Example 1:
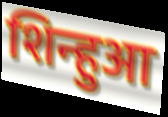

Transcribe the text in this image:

शिन्हुआ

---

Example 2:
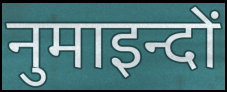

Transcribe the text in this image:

नुमाइन्दों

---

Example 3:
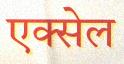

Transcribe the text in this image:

एक्सेल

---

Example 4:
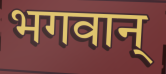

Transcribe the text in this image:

भगवान्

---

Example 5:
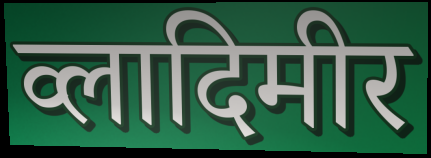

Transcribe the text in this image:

व्लादिमीर